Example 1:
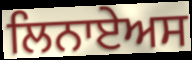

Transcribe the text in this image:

ਲਿਨਾਏਅਸ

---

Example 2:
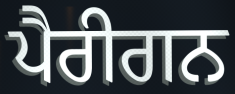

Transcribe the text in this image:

ਪੈਰੀਗਨ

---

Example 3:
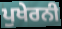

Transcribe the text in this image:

ਪੁਖੇਰਨੀ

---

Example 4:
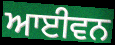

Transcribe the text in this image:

ਆਈਵਨ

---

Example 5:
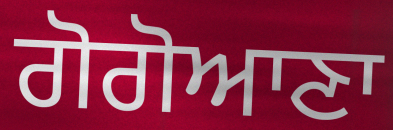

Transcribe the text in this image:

ਗੋਗੋਆਣਾ